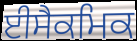
ਈਸੈਕਮਿਕ